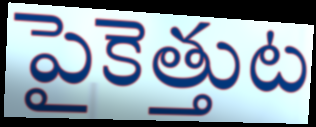
పైకెత్తుట